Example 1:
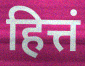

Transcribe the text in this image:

हित्तं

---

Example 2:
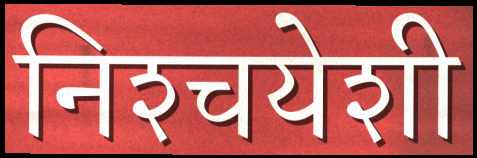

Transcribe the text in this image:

निश्चयेशी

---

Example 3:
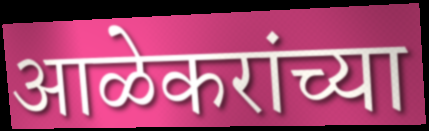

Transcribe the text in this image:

आळेकरांच्या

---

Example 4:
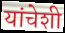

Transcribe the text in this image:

यांचेशी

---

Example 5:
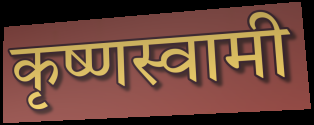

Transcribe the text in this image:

कृष्णस्वामी